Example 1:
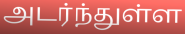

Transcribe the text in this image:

அடர்ந்துள்ள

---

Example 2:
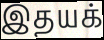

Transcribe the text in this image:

இதயக்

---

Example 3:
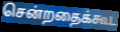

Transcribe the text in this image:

சென்றதைக்கூட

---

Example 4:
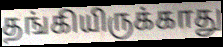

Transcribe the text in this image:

தங்கியிருக்காது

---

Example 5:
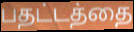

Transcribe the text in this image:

பதட்டத்தை